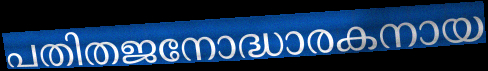
പതിതജനോദ്ധാരകനായ